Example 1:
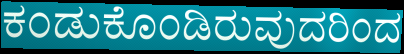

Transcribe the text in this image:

ಕಂಡುಕೊಂಡಿರುವುದರಿಂದ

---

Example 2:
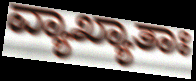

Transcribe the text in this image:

ವ್ಯಾಖ್ಯಾತಾಃ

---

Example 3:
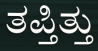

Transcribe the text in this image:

ತಪ್ತಿತ್ತು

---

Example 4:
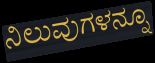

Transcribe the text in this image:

ನಿಲುವುಗಳನ್ನೂ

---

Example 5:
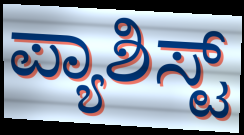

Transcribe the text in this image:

ಪ್ಯಾಶಿಸ್ಟ್